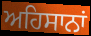
ਅਹਿਸਾਨਾਂ